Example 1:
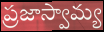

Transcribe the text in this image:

ప్రజాస్వామ్య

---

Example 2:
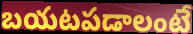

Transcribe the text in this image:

బయటపడాలంటే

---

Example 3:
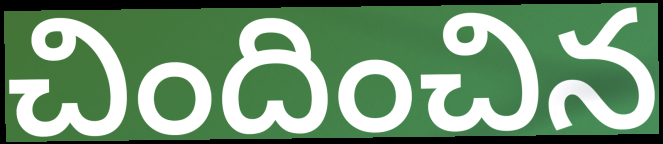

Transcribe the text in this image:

చిందించిన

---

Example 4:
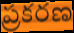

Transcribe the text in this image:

ప్రకరణ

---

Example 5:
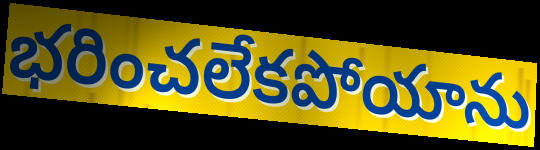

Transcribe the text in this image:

భరించలేకపోయాను